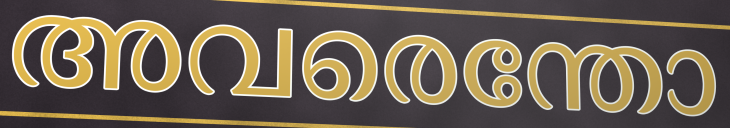
അവരെന്തോ